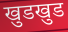
खुडखुड